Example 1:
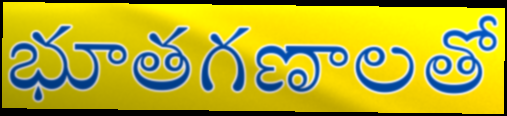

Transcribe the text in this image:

భూతగణాలతో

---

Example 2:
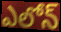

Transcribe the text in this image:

ఎలోన్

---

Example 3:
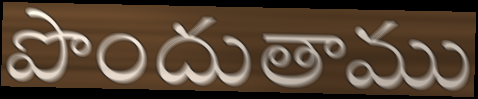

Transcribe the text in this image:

పొందుతాము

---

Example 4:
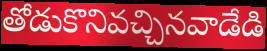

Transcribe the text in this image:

తోడుకొనివచ్చినవాడేడి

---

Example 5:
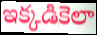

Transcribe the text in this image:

ఇక్కడికెలా